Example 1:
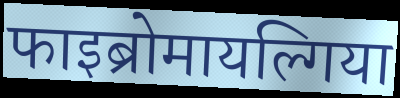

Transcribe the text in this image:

फाइब्रोमायल्गिया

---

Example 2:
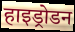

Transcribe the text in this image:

हाइड्रोडन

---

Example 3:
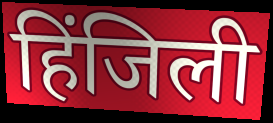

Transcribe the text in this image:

हिंजिली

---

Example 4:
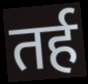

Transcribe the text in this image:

तर्ह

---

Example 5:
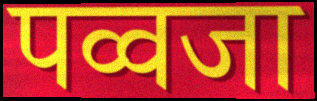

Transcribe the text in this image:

पव्वजा